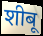
शीबू